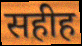
सहीह